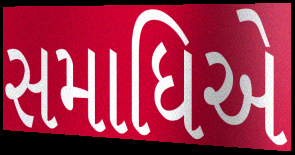
સમાધિએ